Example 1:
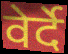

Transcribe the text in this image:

वेर्दे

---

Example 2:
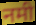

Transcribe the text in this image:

नमी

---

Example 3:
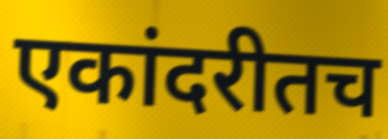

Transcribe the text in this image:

एकांदरीतच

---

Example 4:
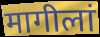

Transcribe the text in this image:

मागीलां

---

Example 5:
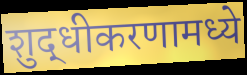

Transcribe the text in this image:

शुद्धीकरणामध्ये